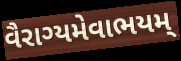
વૈરાગ્યમેવાભયમ્